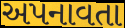
અપનાવતા